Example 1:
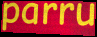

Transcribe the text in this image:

parru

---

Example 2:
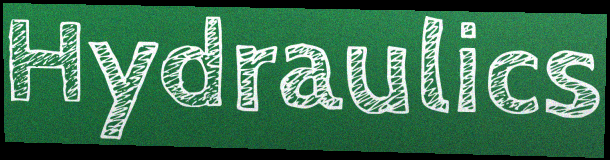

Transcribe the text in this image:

Hydraulics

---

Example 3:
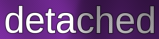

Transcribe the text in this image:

detached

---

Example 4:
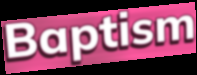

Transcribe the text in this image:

Baptism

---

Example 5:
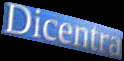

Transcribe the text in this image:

Dicentra